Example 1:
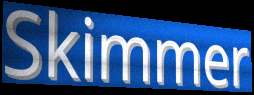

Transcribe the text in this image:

Skimmer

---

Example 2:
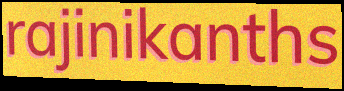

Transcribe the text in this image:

rajinikanths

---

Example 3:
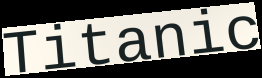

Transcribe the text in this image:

Titanic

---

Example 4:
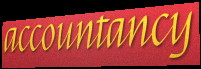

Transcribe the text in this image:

accountancy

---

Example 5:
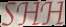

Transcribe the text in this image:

SHH